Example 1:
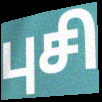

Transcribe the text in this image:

புசி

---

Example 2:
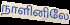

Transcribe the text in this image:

நாளினிலே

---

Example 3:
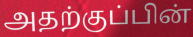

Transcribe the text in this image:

அதற்குப்பின்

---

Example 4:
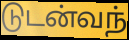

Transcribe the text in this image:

டுடன்வந்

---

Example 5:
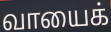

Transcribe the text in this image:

வாயைக்